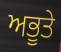
ਅਭੂਤੇ